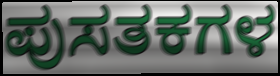
ಪುಸತಕಗಳ